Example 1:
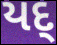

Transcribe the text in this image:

યદ્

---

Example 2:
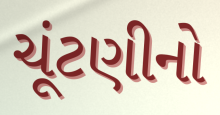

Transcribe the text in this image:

ચૂંટણીનો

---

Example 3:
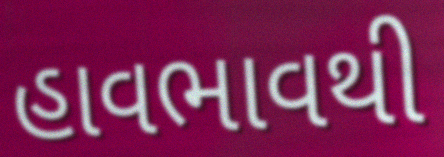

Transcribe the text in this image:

હાવભાવથી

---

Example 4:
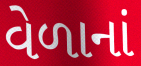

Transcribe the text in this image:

વેળાનાં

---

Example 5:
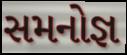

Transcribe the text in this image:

સમનોજ્ઞ